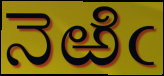
నెఱిఁ